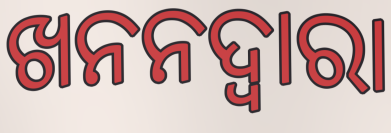
ଖନନଦ୍ୱାରା